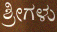
ಶ್ರೀಗಳು